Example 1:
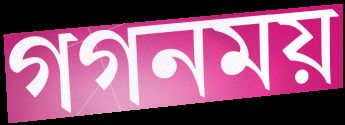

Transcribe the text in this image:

গগনময়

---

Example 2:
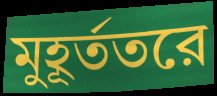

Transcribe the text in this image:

মুহূর্ততরে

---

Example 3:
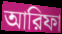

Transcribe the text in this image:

আরিফা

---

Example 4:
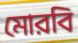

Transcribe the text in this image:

মোরবি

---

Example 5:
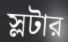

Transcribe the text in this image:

স্লটার